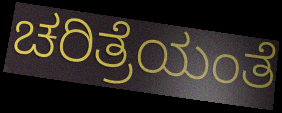
ಚರಿತ್ರೆಯಂತೆ